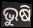
ଭୁଷି